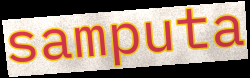
samputa